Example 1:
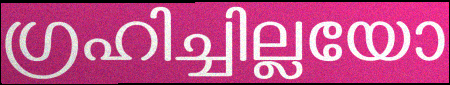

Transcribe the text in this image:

ഗ്രഹിച്ചില്ലയോ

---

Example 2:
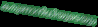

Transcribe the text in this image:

കരുണാനിധിയുടെയും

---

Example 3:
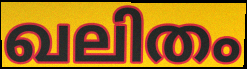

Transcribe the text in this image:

ഖലിതം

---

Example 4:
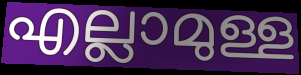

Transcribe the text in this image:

എല്ലാമുള്ള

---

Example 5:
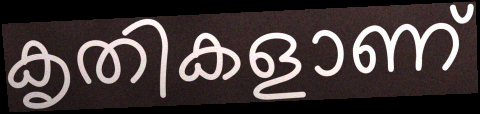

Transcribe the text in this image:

കൃതികളാണ്